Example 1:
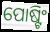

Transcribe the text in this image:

ପୋଷ୍ଟିଂ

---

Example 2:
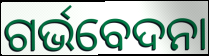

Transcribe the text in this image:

ଗର୍ଭବେଦନା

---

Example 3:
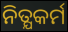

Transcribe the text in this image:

ନିତ୍ଯକର୍ମ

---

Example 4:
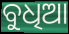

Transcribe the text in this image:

ବୁଧିଆ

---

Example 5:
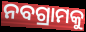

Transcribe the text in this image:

ନବଗ୍ରାମକୁ